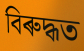
বিৰুদ্ধত